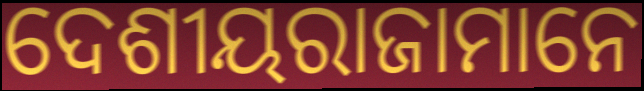
ଦେଶୀୟରାଜାମାନେ